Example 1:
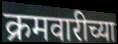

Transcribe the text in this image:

क्रमवारीच्या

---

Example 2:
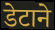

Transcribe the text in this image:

डेटाने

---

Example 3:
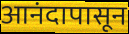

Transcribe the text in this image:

आनंदापासून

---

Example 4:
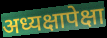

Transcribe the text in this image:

अध्यक्षापेक्षा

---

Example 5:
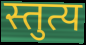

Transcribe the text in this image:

स्तुत्य